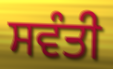
ਸਵੰਤੀ